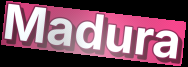
Madura